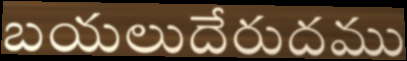
బయలుదేరుదము